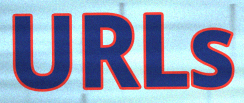
URLs